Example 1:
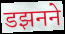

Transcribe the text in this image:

डझनने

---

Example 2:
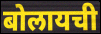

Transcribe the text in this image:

बोलायची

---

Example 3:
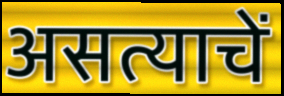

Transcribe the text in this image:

असत्याचें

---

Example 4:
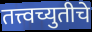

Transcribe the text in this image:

तत्त्वच्युतीचे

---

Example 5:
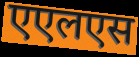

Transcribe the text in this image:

एएलएस